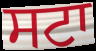
ਸਟਾ